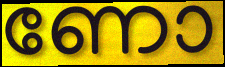
ണോ